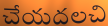
చేయదలచి